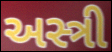
અસ્ત્રી